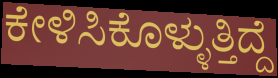
ಕೇಳಿಸಿಕೊಳ್ಳುತ್ತಿದ್ದೆ